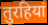
तुरहियां